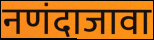
नणंदाजावा